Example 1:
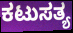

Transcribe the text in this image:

ಕಟುಸತ್ಯ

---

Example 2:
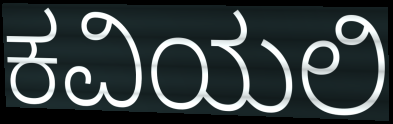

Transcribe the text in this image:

ಕವಿಯಲಿ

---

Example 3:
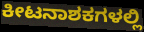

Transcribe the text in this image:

ಕೀಟನಾಶಕಗಳಲ್ಲಿ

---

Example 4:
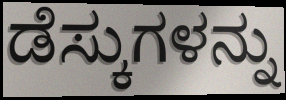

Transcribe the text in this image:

ಡೆಸ್ಕುಗಳನ್ನು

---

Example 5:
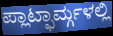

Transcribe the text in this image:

ಪ್ಲಾಟ್ಫಾರ್ಮ್ಗಳಲ್ಲಿ